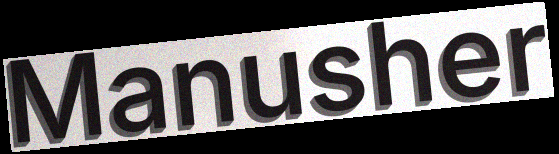
Manusher